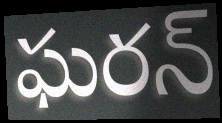
ఘరన్